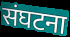
संघटना